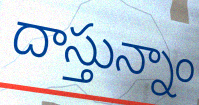
దాస్తున్నాం